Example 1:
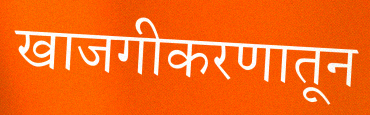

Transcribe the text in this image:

खाजगीकरणातून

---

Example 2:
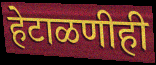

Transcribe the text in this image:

हेटाळणीही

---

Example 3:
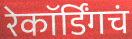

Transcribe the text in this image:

रेकॉर्डिंगचं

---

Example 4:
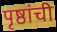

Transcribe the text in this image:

पृष्ठांची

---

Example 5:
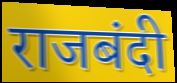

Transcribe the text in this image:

राजबंदी